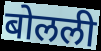
बोलली